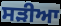
ਸੜੀਆ